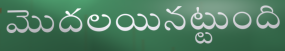
మొదలయినట్టుంది